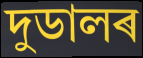
দুডালৰ